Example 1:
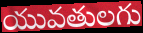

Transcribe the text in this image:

యువతులగు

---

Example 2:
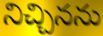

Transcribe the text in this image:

నిచ్చినను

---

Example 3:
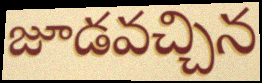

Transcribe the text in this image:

జూడవచ్చిన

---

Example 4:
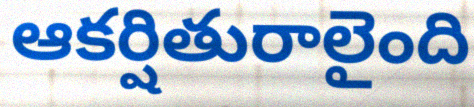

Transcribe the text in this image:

ఆకర్షితురాలైంది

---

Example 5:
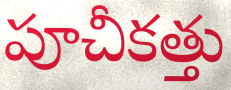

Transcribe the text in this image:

పూచీకత్తు